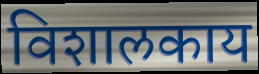
विशालकाय